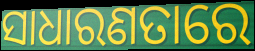
ସାଧାରଣତାରେ